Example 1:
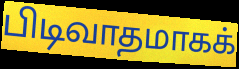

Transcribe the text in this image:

பிடிவாதமாகக்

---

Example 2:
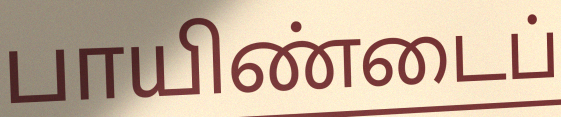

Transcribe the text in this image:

பாயிண்டைப்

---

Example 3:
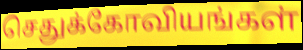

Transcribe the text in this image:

செதுக்கோவியங்கள்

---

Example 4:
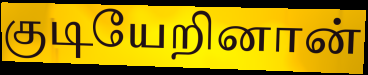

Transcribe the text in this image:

குடியேறினான்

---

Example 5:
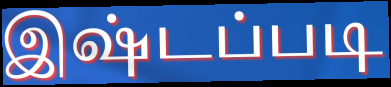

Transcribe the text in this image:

இஷ்டப்படி